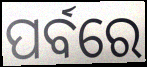
ପର୍ବରେ